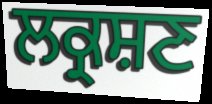
ਲਕ੍ਰਸ਼ਣ